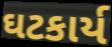
ઘટકાર્ય